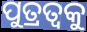
ପୁତ୍ରତ୍ଵକୁ